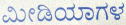
ಮೀಡಿಯಾಗಳ